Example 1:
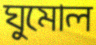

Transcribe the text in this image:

ঘুমোল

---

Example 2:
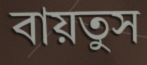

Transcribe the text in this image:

বায়তুস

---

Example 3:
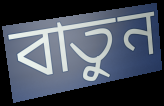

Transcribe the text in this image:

বাতুন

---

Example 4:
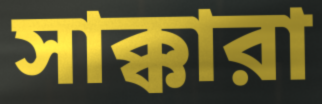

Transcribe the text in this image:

সাক্কারা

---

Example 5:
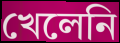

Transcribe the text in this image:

খেলেনি